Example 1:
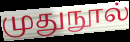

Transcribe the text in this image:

முதுநூல்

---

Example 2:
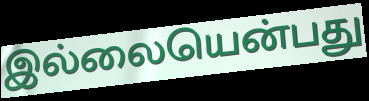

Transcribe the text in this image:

இல்லையென்பது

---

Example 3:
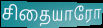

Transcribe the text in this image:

சிதையாரோ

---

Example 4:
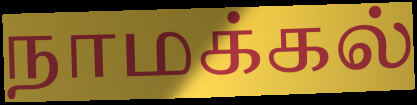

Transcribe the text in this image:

நாமக்கல்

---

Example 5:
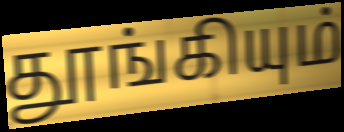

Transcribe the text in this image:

தூங்கியும்